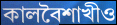
কালবৈশাখীও